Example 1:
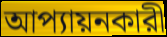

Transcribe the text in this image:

আপ্যায়নকারী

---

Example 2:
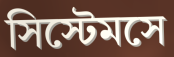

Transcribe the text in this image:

সিস্টেমসে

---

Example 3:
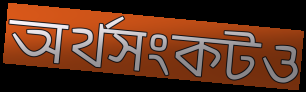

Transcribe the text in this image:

অর্থসংকটও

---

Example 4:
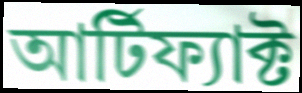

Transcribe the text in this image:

আর্টিফ্যাক্ট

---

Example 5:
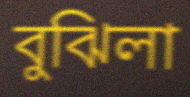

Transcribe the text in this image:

বুঝিলা